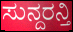
ಸುನ್ದರನ್ತಿ